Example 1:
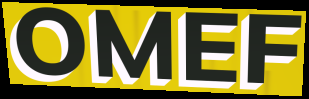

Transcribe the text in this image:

OMEF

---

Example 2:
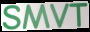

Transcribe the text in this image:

SMVT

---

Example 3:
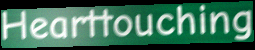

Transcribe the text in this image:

Hearttouching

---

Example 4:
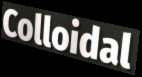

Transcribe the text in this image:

Colloidal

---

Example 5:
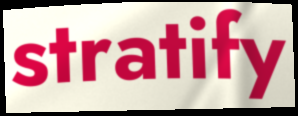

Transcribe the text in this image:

stratify